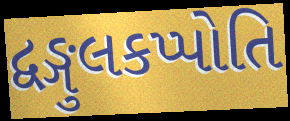
દ્વઙ્ગુલકપ્પોતિ